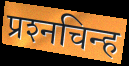
प्रश्नचिन्ह